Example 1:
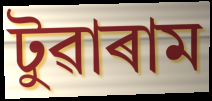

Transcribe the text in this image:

টুৱাৰাম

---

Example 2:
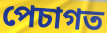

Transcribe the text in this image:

পেচাগত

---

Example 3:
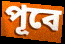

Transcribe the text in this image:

পূবে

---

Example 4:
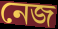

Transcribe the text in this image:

নেজ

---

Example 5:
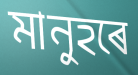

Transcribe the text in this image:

মানুহৰে